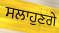
ਸਲਾਹੁਣਗੇ